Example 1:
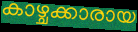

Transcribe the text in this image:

കാഴ്ചക്കാരായ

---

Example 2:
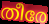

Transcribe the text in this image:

തീരേ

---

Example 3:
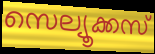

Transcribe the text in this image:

സെല്യൂക്കസ്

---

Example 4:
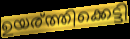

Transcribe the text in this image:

ഉയര്ത്തിക്കെട്ടി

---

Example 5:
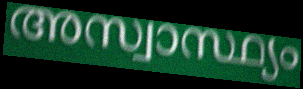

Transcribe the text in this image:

അസ്വാസ്ഥ്യം